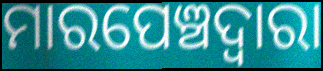
ମାରପେଞ୍ଚଦ୍ବାରା